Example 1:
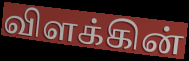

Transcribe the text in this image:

விளக்கின்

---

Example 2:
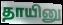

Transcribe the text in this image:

தாயினு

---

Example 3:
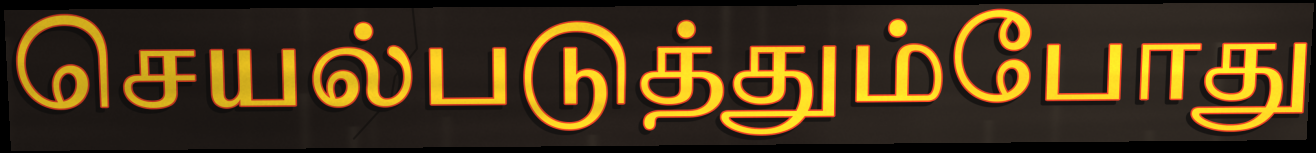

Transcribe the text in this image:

செயல்படுத்தும்போது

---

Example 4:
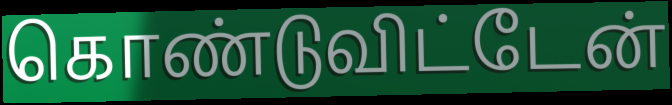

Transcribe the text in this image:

கொண்டுவிட்டேன்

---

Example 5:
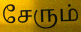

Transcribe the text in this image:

சேரும்